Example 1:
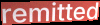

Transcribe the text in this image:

remitted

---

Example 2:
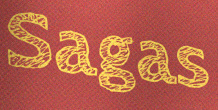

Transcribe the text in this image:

Sagas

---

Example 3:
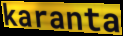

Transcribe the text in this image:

karanta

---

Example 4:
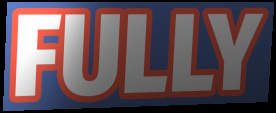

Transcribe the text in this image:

FULLY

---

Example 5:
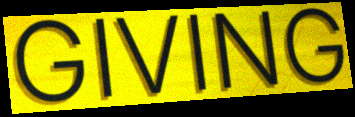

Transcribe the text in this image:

GIVING